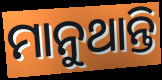
ମାନୁଥାନ୍ତି